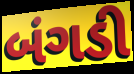
બંગડી